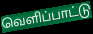
வெளிப்பாட்டு